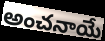
అంచనాయే